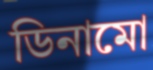
ডিনামো